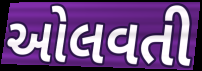
ઓલવતી